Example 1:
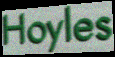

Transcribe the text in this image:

Hoyles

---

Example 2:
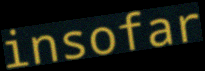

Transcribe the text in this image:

insofar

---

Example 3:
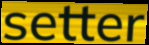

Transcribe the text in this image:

setter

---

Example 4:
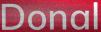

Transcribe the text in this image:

Donal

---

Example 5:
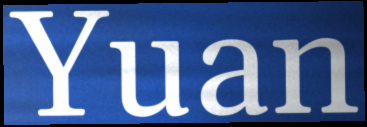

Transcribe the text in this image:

Yuan